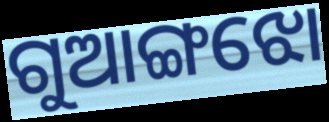
ଗୁଆଙ୍ଗଝୋ